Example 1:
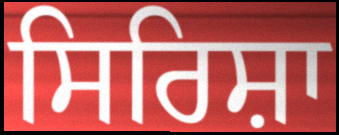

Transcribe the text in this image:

ਸਿਰਿਸ਼ਾ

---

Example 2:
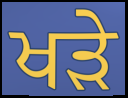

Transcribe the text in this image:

ਖਡ਼ੇ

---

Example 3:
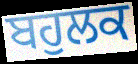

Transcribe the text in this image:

ਬਹੁਲਕ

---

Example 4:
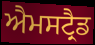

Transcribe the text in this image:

ਐਮਸਟ੍ਰੈਡ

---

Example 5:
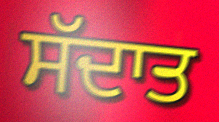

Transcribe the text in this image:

ਸੱਦਾਤ